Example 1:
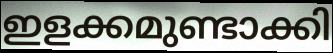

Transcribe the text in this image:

ഇളക്കമുണ്ടാക്കി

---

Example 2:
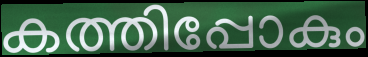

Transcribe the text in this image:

കത്തിപ്പോകും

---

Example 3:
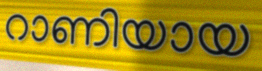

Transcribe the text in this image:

റാണിയായ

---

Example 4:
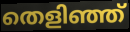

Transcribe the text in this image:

തെളിഞ്ഞ്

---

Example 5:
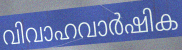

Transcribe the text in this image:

വിവാഹവാർഷിക